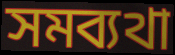
সমব্যথা